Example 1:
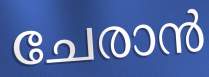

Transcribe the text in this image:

ചേരാൻ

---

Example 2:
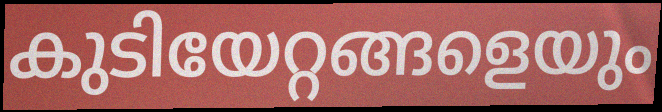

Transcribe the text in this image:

കുടിയേറ്റങ്ങളെയും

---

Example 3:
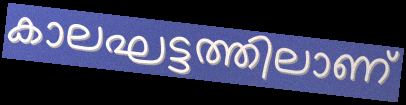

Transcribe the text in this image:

കാലഘട്ടത്തിലാണ്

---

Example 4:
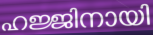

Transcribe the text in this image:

ഹജ്ജിനായി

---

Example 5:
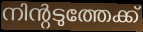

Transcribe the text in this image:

നിന്റടുത്തേക്ക്